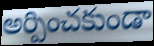
అర్పించకుండా